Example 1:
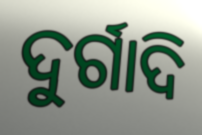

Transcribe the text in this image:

ଦୁର୍ଗାଦି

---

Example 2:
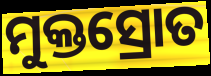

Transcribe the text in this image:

ମୁକ୍ତସ୍ରୋତ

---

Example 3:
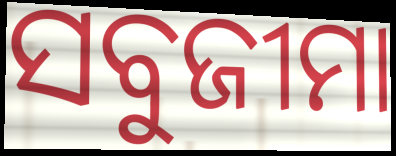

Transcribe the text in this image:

ସବୁଜୀମା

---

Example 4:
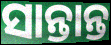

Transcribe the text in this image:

ସାନ୍ତାନ୍ତ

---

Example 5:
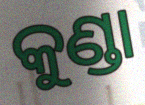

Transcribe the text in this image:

କୁଣ୍ଡା